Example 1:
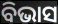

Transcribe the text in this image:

ବିଭାସ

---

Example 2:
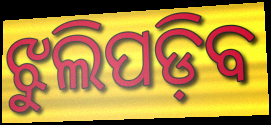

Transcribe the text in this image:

ଝୁଲିପଡ଼ିବ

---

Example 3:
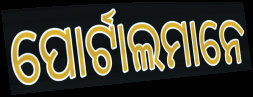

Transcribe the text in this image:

ପୋର୍ଟାଲମାନେ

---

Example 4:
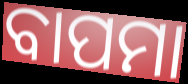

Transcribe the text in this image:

ବାପମା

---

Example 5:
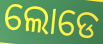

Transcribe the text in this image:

ଲୋଡେ